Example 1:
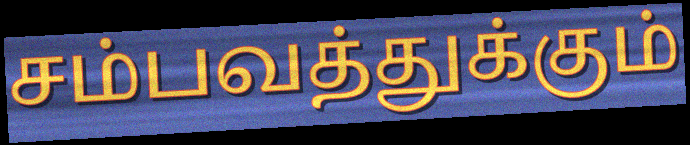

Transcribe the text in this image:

சம்பவத்துக்கும்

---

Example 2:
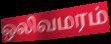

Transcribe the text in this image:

ஒலிவமரம்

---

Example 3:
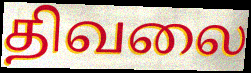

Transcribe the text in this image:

திவலை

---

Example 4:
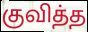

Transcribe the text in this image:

குவித்த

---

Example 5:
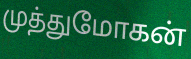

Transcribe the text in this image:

முத்துமோகன்